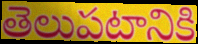
తెలుపటానికి